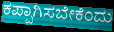
ಕಪ್ಪಾಗಿಸಬೇಕೆಂದು